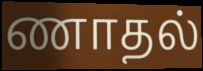
ணாதல்